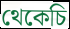
থেকেচি